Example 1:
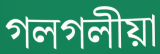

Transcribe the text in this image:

গলগলীয়া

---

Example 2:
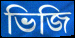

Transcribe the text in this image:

ভিজি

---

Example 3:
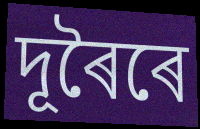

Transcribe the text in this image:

দূৰৈৰে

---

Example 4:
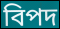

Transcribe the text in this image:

বিপদ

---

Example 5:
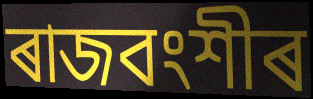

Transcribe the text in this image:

ৰাজবংশীৰ